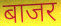
बाजर